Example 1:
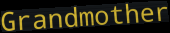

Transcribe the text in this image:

Grandmother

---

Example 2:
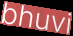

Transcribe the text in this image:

bhuvi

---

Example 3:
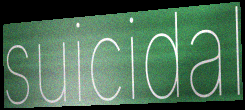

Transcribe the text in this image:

suicidal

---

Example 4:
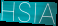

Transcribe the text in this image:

HSIA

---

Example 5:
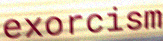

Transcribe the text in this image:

exorcism